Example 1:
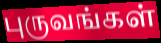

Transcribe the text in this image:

புருவங்கள்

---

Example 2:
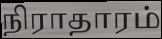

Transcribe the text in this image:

நிராதாரம்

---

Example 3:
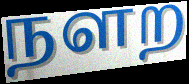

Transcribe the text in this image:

நளற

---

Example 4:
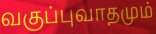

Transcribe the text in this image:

வகுப்புவாதமும்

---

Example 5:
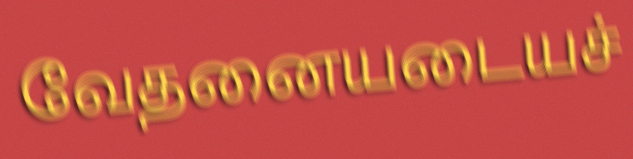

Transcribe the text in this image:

வேதனையடையச்